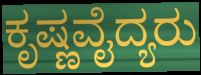
ಕೃಷ್ಣವೈದ್ಯರು